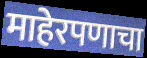
माहेरपणाचा